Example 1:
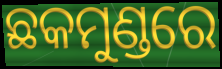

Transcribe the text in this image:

ଛକମୁଣ୍ଡରେ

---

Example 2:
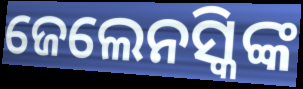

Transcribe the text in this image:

ଜେଲେନସ୍କିଙ୍କ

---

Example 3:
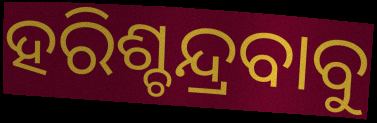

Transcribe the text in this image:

ହରିଶ୍ଚନ୍ଦ୍ରବାବୁ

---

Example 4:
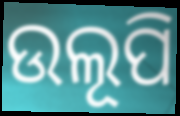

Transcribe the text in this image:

ଉଲୂପି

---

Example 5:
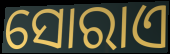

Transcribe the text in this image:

ସୋରାଏ